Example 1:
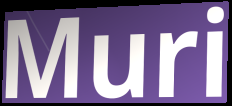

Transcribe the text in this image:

Muri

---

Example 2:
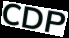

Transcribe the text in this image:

CDP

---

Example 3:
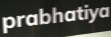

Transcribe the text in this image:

prabhatiya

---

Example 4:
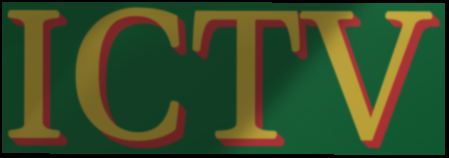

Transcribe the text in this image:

ICTV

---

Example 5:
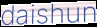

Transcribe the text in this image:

daishun